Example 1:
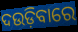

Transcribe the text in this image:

ଦଉଡ଼ିବାରେ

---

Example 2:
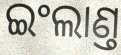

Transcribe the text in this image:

ଇଂଲାଣ୍ତ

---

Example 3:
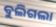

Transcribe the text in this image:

ବୁଲିଗଲା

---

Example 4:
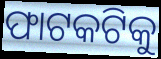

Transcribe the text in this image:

ଫାଟକଟିକୁ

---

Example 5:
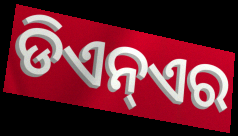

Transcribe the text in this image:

ଡିଏନ୍ଏର